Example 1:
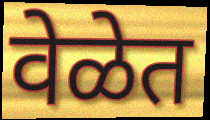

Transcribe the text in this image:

वेळेत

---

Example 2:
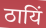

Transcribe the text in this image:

ठायिं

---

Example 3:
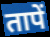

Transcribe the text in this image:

तापें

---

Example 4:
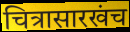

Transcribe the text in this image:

चित्रासारखंच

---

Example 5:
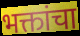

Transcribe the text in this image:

भक्तांचा